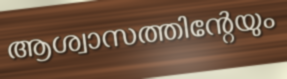
ആശ്വാസത്തിന്റേയും